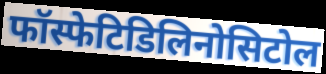
फॉस्फेटिडिलिनोसिटोल